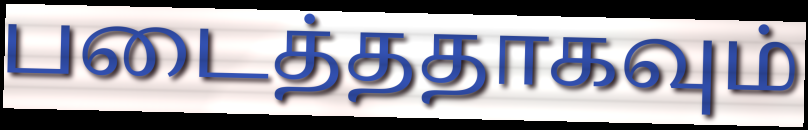
படைத்ததாகவும்